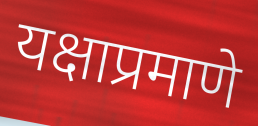
यक्षाप्रमाणे